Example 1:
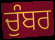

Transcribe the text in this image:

ਚੁੰਬਰ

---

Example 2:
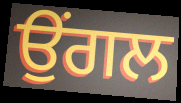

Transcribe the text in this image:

ਉੰਗਲ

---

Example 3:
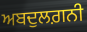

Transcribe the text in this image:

ਅਬਦੁਲਗ਼ਨੀ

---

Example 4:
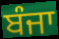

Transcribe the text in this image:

ਬੰਜਾ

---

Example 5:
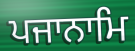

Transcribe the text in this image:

ਪਜਾਨਾਮਿ